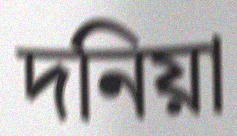
দনিয়া